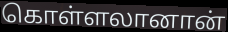
கொள்ளலானான்